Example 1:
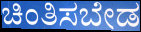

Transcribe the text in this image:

ಚಿಂತಿಸಬೇಡ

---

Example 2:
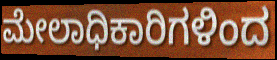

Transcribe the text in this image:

ಮೇಲಾಧಿಕಾರಿಗಳಿಂದ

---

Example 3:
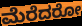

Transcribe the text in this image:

ಮೆರೆದರೋ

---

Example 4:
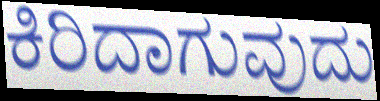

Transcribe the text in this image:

ಕಿರಿದಾಗುವುದು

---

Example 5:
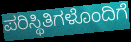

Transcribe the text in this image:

ಪರಿಸ್ಥಿತಿಗಳೊಂದಿಗೆ